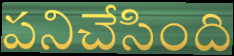
పనిచేసింది